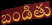
బండితు